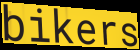
bikers